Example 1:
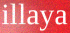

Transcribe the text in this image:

illaya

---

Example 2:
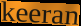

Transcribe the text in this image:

keeran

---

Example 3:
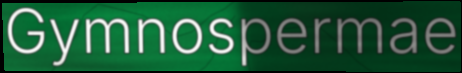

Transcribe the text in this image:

Gymnospermae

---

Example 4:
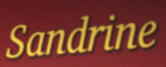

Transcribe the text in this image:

Sandrine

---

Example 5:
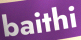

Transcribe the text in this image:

baithi